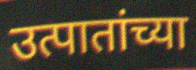
उत्पातांच्या